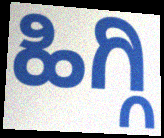
ಹಿಗ್ಗಿ